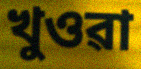
খুওৱা